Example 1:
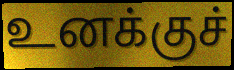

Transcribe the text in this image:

உனக்குச்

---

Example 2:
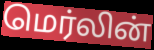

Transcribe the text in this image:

மெர்லின்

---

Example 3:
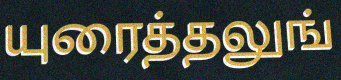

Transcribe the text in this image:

யுரைத்தலுங்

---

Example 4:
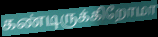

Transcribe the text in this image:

கண்டிருக்கிறோமா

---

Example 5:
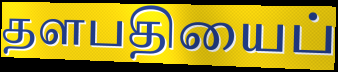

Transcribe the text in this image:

தளபதியைப்